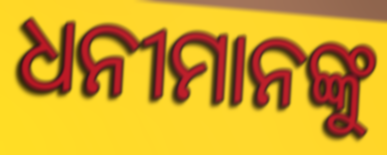
ଧନୀମାନଙ୍କୁ